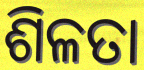
ଶିଳତା